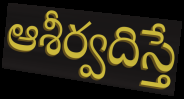
ఆశీర్వదిస్తే